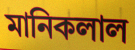
মানিকলাল